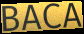
BACA